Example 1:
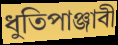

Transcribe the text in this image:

ধুতিপাঞ্জাবী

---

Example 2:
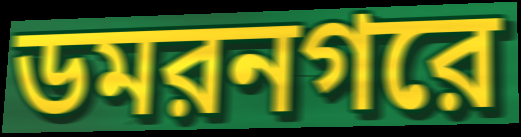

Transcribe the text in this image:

ডমরনগরে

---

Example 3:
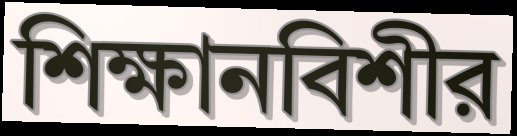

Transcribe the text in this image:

শিক্ষানবিশীর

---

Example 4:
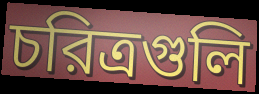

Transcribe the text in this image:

চরিত্রগুলি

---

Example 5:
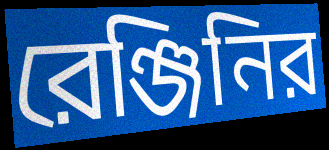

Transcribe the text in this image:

রেঞ্জিনির